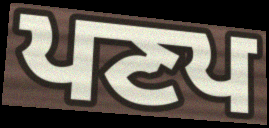
ਪਣਪ